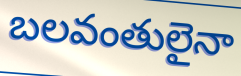
బలవంతులైనా